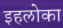
इहलोका